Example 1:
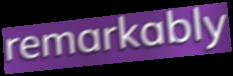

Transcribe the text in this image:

remarkably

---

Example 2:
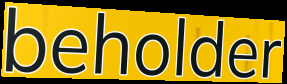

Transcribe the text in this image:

beholder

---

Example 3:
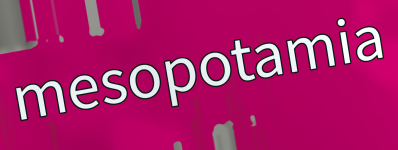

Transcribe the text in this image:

mesopotamia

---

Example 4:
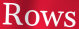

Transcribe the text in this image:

Rows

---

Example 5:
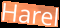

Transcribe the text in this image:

Harel